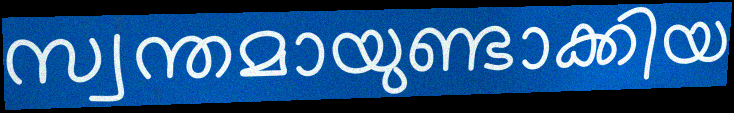
സ്വന്തമായുണ്ടാക്കിയ